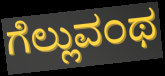
ಗೆಲ್ಲುವಂಥ